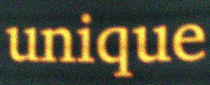
unique